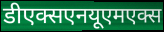
डीएक्सएनयूएमएक्स